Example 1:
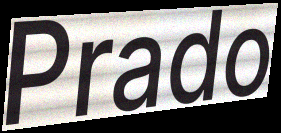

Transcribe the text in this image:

Prado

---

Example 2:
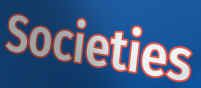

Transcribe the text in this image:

Societies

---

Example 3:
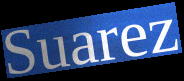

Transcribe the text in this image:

Suarez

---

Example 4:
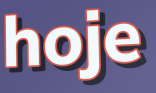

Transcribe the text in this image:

hoje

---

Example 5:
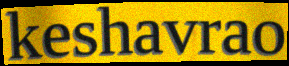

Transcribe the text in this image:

keshavrao